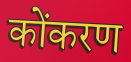
कोंकरण